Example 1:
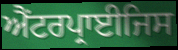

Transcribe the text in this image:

ਐਂਟਰਪ੍ਰਾਈਜਿਸ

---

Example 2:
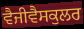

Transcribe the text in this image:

ਵੈਜੀਵੈਸਕੁਲਰ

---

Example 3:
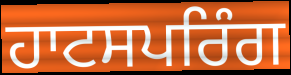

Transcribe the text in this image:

ਹਾਟਸਪਰਿੰਗ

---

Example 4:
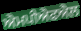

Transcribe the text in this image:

ਐਮਪੀਐਫਐਲ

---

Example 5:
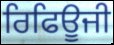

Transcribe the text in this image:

ਰਿਫਿਊਜੀ